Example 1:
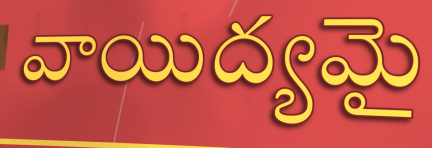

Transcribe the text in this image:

వాయిద్యమై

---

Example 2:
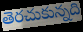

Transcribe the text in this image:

తెరచుకున్నది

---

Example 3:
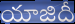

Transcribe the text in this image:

యాజిదీ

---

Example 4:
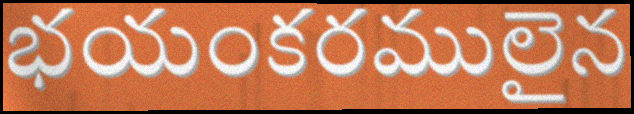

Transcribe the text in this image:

భయంకరములైన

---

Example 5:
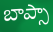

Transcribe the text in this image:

బాప్సా